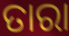
ତାରା